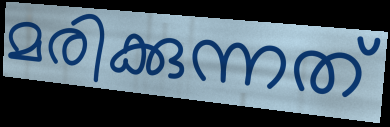
മരിക്കുന്നത്